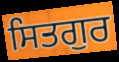
ਸਿਤਗੁਰ